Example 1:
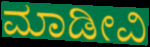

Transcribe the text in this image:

ಮಾಡೀವಿ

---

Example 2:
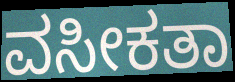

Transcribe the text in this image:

ವಸೀಕತಾ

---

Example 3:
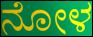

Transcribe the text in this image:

ನೋಳ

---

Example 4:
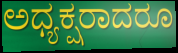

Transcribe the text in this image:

ಅಧ್ಯಕ್ಷರಾದರೂ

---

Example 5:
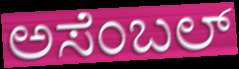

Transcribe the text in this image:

ಅಸೆಂಬಲ್